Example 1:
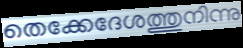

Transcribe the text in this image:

തെക്കേദേശത്തുനിന്നു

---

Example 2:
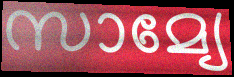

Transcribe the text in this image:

സാമ്യേ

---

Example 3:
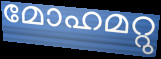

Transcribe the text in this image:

മോഹമറ്റു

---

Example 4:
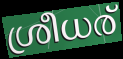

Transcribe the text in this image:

ശ്രീധര്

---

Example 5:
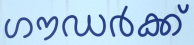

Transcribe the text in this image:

ഗൗഡർക്ക്